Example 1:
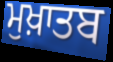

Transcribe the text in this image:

ਮੁਖ਼ਾਤਬ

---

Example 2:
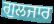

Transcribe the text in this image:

ਗੁਲਜਾਰ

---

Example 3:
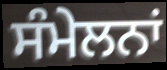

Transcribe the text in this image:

ਸੰਮੇਲਨਾਂ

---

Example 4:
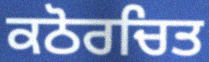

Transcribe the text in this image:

ਕਠੋਰਚਿਤ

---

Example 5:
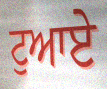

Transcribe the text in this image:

ਟੁਆਏ